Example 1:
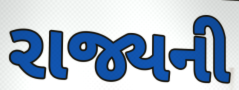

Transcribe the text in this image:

રાજ્યની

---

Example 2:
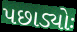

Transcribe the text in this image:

પછાડ્યોઃ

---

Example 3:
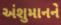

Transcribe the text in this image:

અંશુમાનને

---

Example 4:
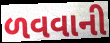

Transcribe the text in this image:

ળવવાની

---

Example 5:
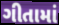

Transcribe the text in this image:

ગીતામાં